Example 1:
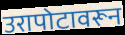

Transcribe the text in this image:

उरापोटावरून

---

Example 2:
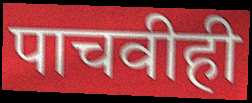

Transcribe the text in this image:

पाचवीही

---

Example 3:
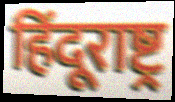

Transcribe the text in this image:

हिंदूराष्ट्र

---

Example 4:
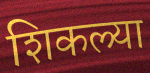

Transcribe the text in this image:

शिकल्या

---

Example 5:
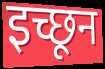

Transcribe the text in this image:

इच्छून